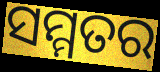
ସମ୍ମତର